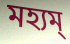
মহ্যম্